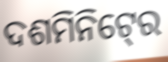
ଦଶମିନିଟ୍‍ରେ